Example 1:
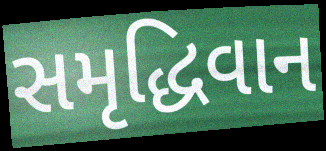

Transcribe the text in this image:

સમૃદ્ધિવાન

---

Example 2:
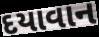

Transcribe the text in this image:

દયાવાન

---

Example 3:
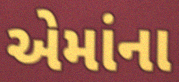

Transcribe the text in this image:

એમાંના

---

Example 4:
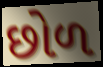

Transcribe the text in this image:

છોળ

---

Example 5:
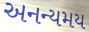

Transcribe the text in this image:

અનન્યમય